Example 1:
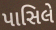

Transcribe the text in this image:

પાસિલે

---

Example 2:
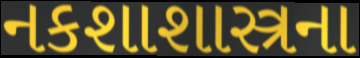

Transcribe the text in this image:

નકશાશાસ્ત્રના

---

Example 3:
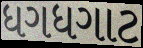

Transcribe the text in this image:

ધગધગાટ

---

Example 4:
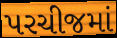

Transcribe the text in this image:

પરચીજમાં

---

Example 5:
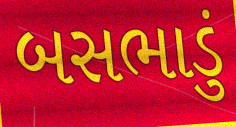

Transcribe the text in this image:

બસભાડું